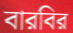
বারবির